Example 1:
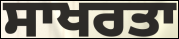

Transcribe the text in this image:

ਸਾਖਰਤਾ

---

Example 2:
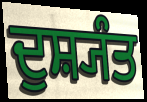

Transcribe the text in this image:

ਦੁਸ਼੍ਯੰਤ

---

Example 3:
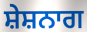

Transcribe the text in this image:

ਸ਼ੇਸ਼ਨਾਗ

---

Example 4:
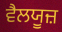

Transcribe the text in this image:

ਵੈਲਯੂਜ਼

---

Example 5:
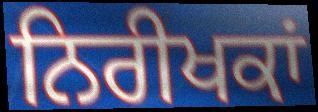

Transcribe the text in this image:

ਨਿਰੀਖਕਾਂ